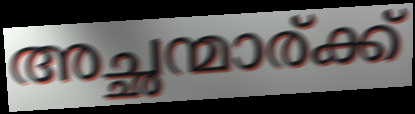
അച്ഛന്മാര്ക്ക്